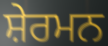
ਸ਼ੇਰਮਨ